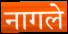
नागले